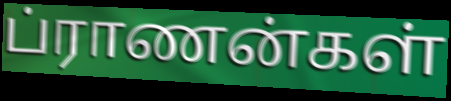
ப்ராணன்கள்